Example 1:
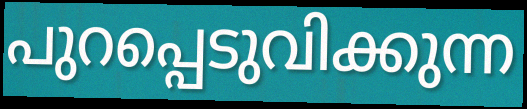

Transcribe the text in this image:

പുറപ്പെടുവിക്കുന്ന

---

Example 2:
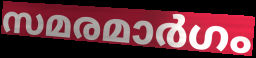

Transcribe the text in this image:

സമരമാർഗം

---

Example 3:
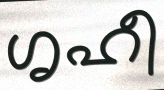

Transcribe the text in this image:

ഗൃഹീ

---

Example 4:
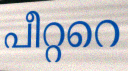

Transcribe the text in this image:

പീറ്ററെ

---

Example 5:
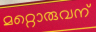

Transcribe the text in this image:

മറ്റൊരുവന്